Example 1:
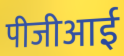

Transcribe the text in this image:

पीजीआई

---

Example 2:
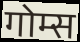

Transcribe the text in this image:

गोम्स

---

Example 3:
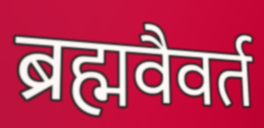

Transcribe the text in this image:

ब्रह्मवैवर्त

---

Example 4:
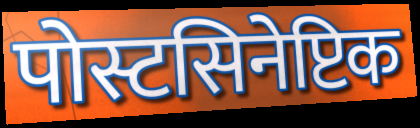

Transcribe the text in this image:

पोस्टसिनेप्टिक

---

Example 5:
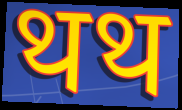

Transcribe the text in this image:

थथ